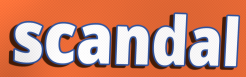
scandal